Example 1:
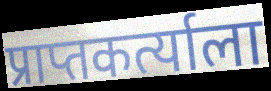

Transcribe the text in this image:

प्राप्तकर्त्याला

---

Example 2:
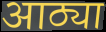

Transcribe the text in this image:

आठ्या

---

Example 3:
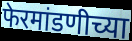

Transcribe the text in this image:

फेरमांडणीच्या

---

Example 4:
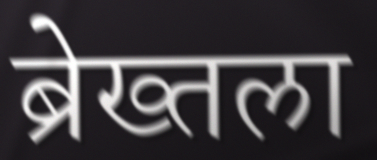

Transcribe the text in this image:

ब्रेख्तला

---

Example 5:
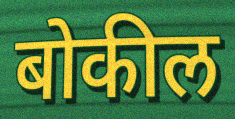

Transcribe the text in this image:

बोकील